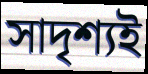
সাদৃশ্যই